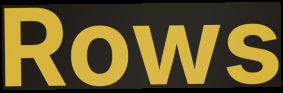
Rows